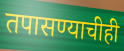
तपासण्याचीही